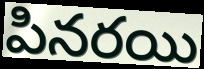
పినరయి